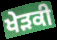
ਖੇੜਕੀ